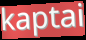
kaptai